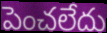
పెంచలేదు